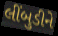
લીંબુડીને